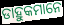
ଡାହୁକମାନେ